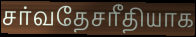
சர்வதேசரீதியாக